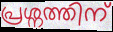
പ്രശ്നത്തിന്